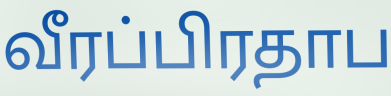
வீரப்பிரதாப